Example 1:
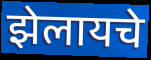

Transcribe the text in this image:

झेलायचे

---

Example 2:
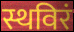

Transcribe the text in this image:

स्थविरं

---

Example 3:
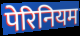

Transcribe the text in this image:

पेरिनियम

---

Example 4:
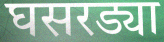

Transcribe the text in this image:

घसरड्या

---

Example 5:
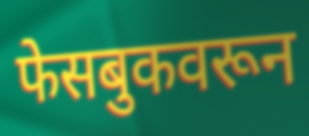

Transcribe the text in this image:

फेसबुकवरून